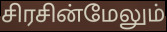
சிரசின்மேலும்